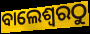
ବାଲେଶ୍ୱରଠୁ